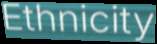
Ethnicity